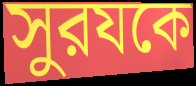
সুরযকে